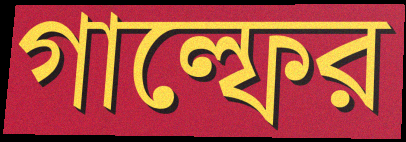
গাল্ফের